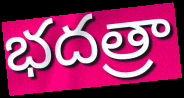
భదత్రా